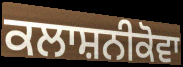
ਕਲਾਸ਼ਨੀਕੋਵਾ